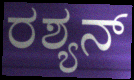
ರಶ್ಯನ್